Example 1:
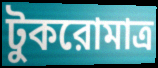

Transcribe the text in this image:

টুকরোমাত্র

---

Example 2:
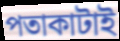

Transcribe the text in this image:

পতাকাটাই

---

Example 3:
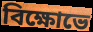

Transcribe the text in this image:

বিক্ষোভে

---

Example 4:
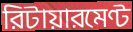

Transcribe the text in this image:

রিটায়ারমেণ্ট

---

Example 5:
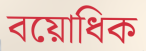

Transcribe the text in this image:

বয়োধিক